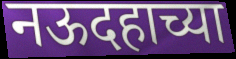
नऊदहाच्या